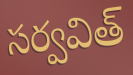
సర్వవిత్